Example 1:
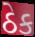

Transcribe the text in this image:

ઠેક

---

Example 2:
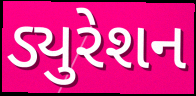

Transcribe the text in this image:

ડ્યુરેશન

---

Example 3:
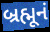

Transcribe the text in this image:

બ્રહ્મૂનં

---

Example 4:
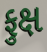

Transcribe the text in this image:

ફુક્ષ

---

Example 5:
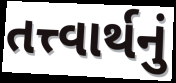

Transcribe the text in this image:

તત્ત્વાર્થનું